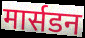
मार्सडन